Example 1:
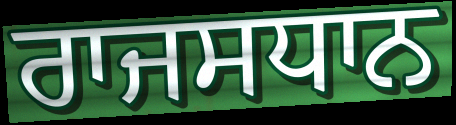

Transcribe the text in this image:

ਰਾਜਸਧਾਨ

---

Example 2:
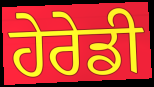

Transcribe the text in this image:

ਹੇਰੇਡੀ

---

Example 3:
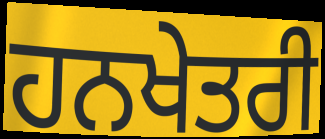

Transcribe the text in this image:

ਹਨਖੇਤਰੀ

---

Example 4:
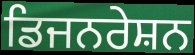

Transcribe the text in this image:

ਡਿਜਨਰੇਸ਼ਨ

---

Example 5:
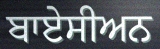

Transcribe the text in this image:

ਬਾਏਸੀਅਨ